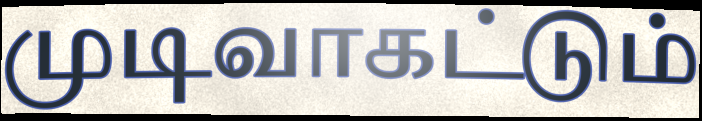
முடிவாகட்டும்